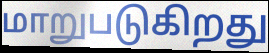
மாறுபடுகிறது